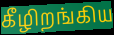
கீழிறங்கிய